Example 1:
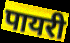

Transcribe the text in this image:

पायरी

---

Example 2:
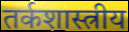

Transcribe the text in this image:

तर्कशास्त्रीय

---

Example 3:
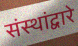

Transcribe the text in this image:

संस्थांद्वारे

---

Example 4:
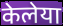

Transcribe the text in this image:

केलेया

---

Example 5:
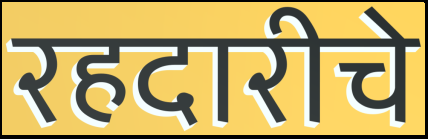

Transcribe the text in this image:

रहदारीचे